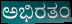
ಅಭಿರತಂ